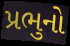
પ્રભુનો